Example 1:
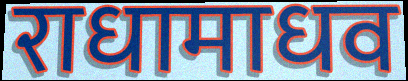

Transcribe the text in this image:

राधामाधव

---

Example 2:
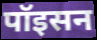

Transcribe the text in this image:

पॉइसन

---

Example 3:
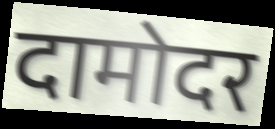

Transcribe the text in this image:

दामोदर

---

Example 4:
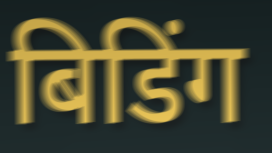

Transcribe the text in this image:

बिडिंग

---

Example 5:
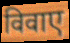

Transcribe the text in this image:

विवाए